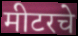
मीटरचे